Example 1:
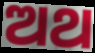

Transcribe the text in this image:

ଅଥ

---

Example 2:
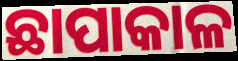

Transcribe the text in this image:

ଛାପାକାଳ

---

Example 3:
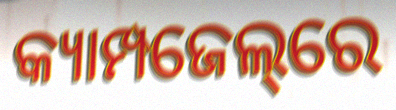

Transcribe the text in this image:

କ୍ୟାମ୍ପଜେଲ୍‌ରେ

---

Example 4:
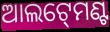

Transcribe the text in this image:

ଆଲଟ୍‍ମେଣ୍ଟ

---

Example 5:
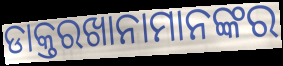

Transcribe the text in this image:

ଡାକ୍ତରଖାନାମାନଙ୍କର